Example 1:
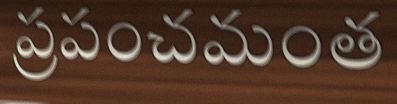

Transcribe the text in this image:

ప్రపంచమంత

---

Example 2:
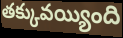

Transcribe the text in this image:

తక్కువయ్యింది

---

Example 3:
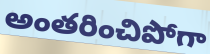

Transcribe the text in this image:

అంతరించిపోగా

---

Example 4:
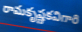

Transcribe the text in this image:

రామకృష్ణకవిగారి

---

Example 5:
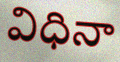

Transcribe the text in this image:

విధినా